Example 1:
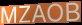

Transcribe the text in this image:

MZAOB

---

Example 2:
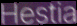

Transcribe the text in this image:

Hestia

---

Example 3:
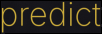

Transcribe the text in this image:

predict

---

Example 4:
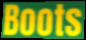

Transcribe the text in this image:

Boots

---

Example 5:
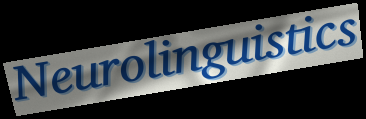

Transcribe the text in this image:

Neurolinguistics